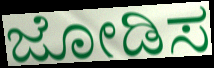
ಜೋಡಿಸ